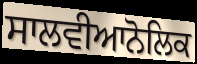
ਸਾਲਵੀਆਨੋਲਿਕ